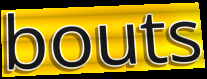
bouts